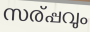
സര്പ്പവും